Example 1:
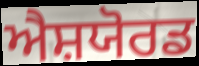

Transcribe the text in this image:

ਐਸ਼ਯੋਰਡ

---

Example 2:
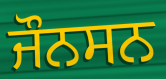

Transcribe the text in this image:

ਜੌਨਸਨ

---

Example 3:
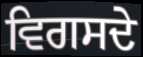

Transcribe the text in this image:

ਵਿਗਸਦੇ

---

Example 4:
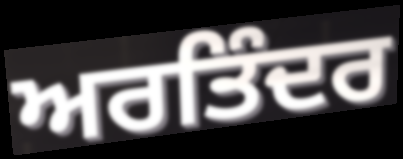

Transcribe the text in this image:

ਅਰਤਿੰਦਰ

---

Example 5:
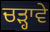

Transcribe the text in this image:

ਚੜ੍ਹਾਵੇ